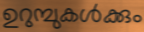
ഉറുമ്പുകൾക്കും